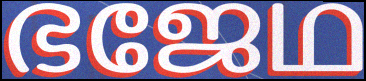
ഭജേഥ